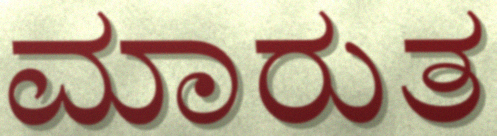
ಮಾರುತ